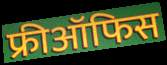
फ्रीऑफिस